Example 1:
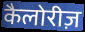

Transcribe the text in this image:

कैलोरीज़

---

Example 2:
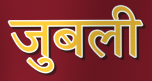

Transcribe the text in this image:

जुबली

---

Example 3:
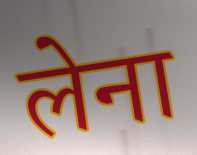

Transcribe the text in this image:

लेना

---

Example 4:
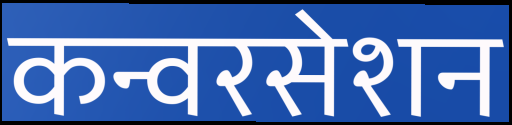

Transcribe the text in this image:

कन्वरसेशन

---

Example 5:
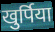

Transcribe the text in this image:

खुर्पिया